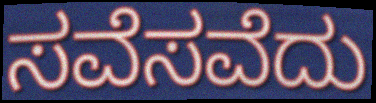
ಸವೆಸವೆದು